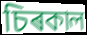
চিৰকাল